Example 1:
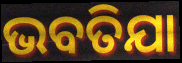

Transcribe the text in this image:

ଭବତିଯା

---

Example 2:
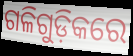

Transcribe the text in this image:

ଗଳିଗୁଡ଼ିକରେ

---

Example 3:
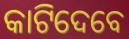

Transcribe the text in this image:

କାଟିଦେବେ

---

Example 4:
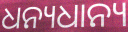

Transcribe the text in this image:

ଧନ୍ୟଧାନ୍ୟ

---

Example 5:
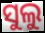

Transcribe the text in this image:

ସୁଲୁ